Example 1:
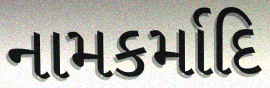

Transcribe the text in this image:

નામકર્માદિ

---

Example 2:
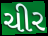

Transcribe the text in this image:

ચીર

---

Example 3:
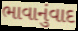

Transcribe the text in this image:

ભાવાનુંવાદ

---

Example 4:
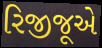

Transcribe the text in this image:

રિજીજૂએ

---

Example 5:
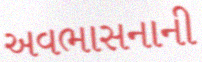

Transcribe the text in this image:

અવભાસનાની